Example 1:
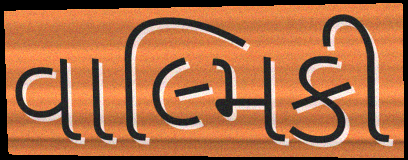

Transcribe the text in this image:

વાલ્મિકી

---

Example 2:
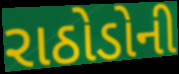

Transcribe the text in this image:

રાઠોડોની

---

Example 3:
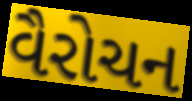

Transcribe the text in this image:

વૈરોચન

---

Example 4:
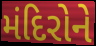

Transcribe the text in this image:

મંદિરોને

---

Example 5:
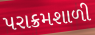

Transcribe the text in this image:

પરાક્રમશાળી